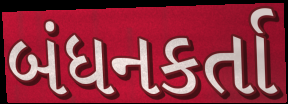
બંધનકર્તા